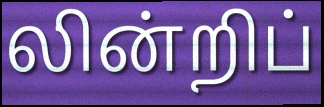
லின்றிப்